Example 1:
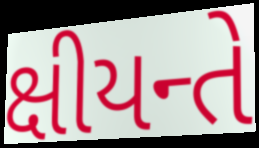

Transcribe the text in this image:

ક્ષીયન્તે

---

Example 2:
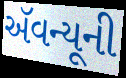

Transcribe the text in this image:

ઍવન્યૂની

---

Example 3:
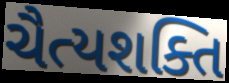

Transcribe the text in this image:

ચૈત્યશક્તિ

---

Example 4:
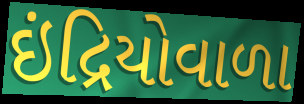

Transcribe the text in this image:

ઇંદ્રિયોવાળા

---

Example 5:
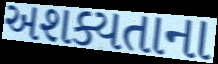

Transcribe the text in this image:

અશક્યતાના